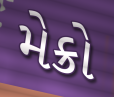
મેક્રો